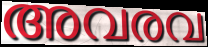
അവരവ